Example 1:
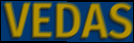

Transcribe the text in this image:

VEDAS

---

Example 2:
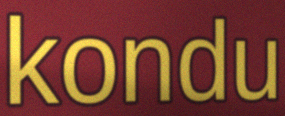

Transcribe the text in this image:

kondu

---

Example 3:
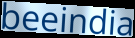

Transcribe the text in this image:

beeindia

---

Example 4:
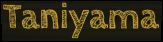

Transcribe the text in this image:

Taniyama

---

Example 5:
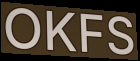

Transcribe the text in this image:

OKFS